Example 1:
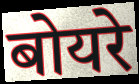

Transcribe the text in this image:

बोयरे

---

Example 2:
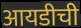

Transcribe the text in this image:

आयडीची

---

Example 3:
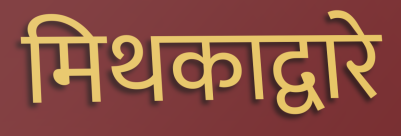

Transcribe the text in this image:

मिथकाद्वारे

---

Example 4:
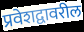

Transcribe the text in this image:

प्रवेशद्वावरील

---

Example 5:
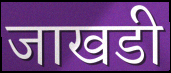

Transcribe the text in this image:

जाखडी